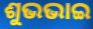
ଶୁଭଭାଇ